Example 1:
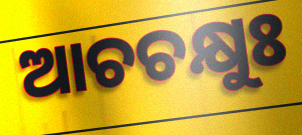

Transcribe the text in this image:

ଆଚଚକ୍ଷୁଃ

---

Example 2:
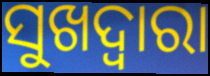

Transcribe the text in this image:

ସୁଖଦ୍ଵାରା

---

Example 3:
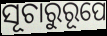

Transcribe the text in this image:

ସୂଚାରୁରୂପେ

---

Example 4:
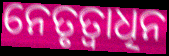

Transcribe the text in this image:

ନେତୃତ୍ୱାଧିନ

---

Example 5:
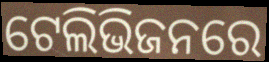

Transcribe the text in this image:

ଟେଲିଭିଜନରେ